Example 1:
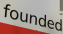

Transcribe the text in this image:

founded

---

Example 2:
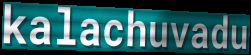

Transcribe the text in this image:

kalachuvadu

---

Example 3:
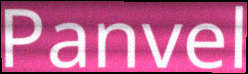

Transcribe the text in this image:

Panvel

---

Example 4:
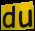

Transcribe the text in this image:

du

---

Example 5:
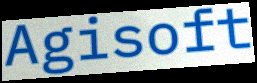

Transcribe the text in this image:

Agisoft